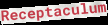
Receptaculum